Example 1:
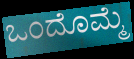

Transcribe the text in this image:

ಒಂದೊಮ್ಮೆ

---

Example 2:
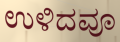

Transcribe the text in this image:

ಉಳಿದವೂ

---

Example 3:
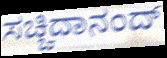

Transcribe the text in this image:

ಸಚ್ಚಿದಾನಂದ್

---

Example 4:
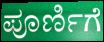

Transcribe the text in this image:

ಪೂರ್ಣಿಗೆ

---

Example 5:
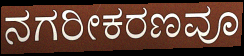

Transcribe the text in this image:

ನಗರೀಕರಣವೂ